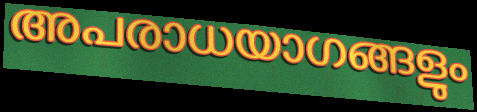
അപരാധയാഗങ്ങളും